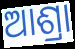
ଆଶ୍ରା